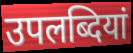
उपलब्दियां